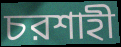
চরশাহী